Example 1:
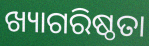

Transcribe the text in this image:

ଖ୍ୟାଗରିଷ୍ଠତା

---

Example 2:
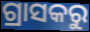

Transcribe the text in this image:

ଗ୍ରାସକରୁ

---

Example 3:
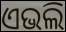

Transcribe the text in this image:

ଏଭଲି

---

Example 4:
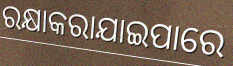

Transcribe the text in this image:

ରକ୍ଷାକରାଯାଇପାରେ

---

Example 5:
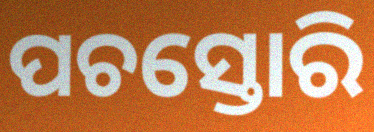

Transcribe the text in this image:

ପଚସ୍ତୋରି